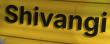
Shivangi